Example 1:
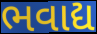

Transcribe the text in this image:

ભવાદ્ય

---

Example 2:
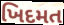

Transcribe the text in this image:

ખિદમત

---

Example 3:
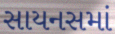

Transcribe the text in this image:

સાયનસમાં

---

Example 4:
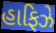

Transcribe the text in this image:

હાફિઝે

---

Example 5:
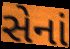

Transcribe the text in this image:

સેનાં